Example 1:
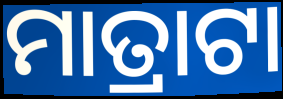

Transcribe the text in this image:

ମାତ୍ରାଟା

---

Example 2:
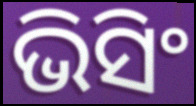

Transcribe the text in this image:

ଭିସିଂ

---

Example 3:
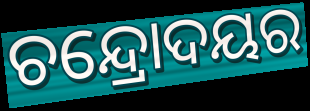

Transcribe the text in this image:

ଚନ୍ଦ୍ରୋଦୟର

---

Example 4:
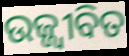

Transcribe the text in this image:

ଉଜ୍ଜ୍ୱୀବିତ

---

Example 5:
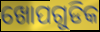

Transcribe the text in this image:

ଖୋପଗୁଡିକ